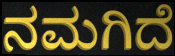
ನಮಗಿದೆ